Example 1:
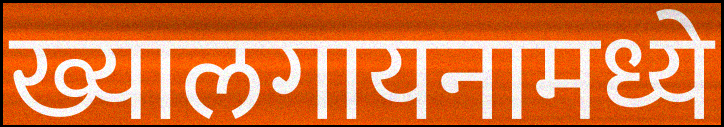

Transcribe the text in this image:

ख्यालगायनामध्ये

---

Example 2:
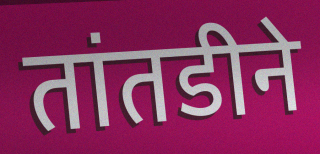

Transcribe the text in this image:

तांतडीने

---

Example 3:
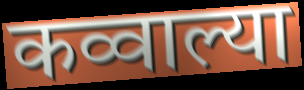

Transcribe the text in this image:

कव्वाल्या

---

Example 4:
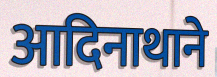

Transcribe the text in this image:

आदिनाथाने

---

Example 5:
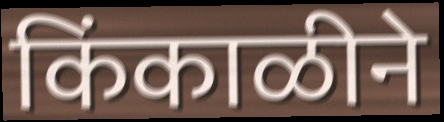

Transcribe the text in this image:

किंकाळीने